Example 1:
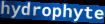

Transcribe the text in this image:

hydrophyte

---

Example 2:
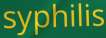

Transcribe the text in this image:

syphilis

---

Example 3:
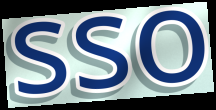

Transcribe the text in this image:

sso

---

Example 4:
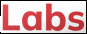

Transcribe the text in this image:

Labs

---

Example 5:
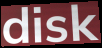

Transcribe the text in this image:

disk